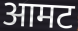
आमट